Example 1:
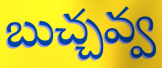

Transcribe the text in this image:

బుచ్చవ్వ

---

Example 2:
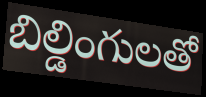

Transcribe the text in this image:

బిల్డింగులతో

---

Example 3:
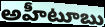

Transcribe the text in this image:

అహీటూబు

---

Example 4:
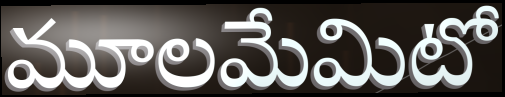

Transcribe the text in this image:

మూలమేమిటో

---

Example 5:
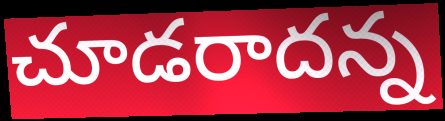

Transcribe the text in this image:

చూడరాదన్న